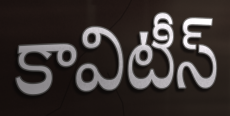
కావిటీస్